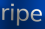
ripe